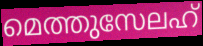
മെത്തുസേലഹ്